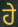
ਹੇ